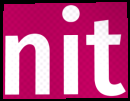
nit